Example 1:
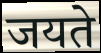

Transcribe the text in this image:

जयते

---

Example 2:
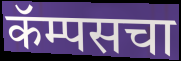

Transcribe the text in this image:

कॅम्पसचा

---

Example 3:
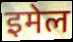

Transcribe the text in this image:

इमेल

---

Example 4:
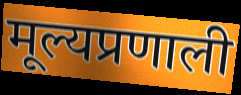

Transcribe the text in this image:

मूल्यप्रणाली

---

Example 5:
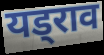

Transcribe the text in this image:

यड्राव